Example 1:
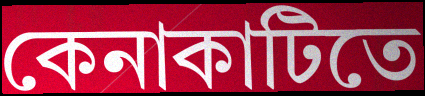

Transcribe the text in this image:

কেনাকাটিতে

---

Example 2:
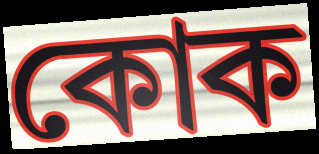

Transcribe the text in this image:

কোক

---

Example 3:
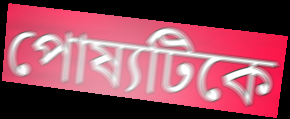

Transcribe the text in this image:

পোষ্যটিকে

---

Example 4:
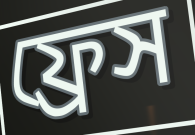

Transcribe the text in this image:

ফ্রেস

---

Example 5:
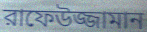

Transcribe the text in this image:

রাফেউজ্জামান